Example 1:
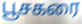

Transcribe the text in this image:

பூசகரை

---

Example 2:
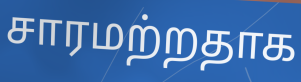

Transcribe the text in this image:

சாரமற்றதாக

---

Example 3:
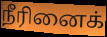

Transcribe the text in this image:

நீரினைக்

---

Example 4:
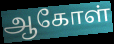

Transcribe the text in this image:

ஆகோள்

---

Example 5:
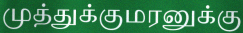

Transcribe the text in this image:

முத்துக்குமரனுக்கு